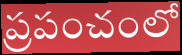
ప్రపంచంలో